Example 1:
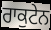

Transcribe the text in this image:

ਰਾਕੁਟੇਨ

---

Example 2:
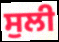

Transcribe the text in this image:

ਸੁਲੀ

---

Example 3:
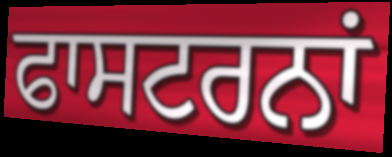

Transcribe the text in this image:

ਫਾਸਟਰਨਾਂ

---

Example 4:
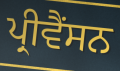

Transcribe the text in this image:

ਪ੍ਰੀਵੈਂਸਨ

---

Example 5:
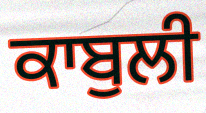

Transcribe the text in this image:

ਕਾਬੁਲੀ